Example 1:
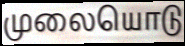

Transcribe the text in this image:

முலையொடு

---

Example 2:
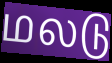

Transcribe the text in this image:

மலடு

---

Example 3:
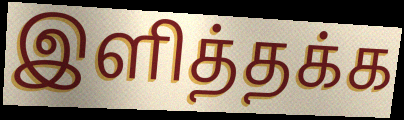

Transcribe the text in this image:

இளித்தக்க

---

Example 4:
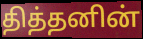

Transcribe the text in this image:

தித்தனின்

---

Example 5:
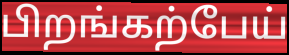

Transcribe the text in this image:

பிறங்கற்பேய்